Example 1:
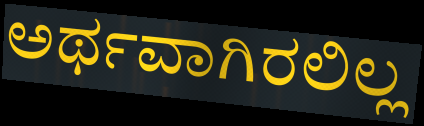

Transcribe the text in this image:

ಅರ್ಥವಾಗಿರಲಿಲ್ಲ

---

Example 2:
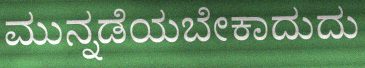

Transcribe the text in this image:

ಮುನ್ನಡೆಯಬೇಕಾದುದು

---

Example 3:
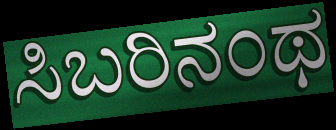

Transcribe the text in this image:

ಸಿಬರಿನಂಥ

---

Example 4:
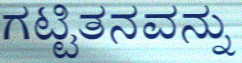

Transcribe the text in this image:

ಗಟ್ಟಿತನವನ್ನು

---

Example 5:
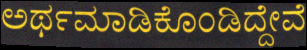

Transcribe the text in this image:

ಅರ್ಥಮಾಡಿಕೊಂಡಿದ್ದೇವೆ